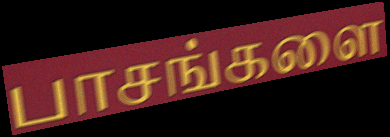
பாசங்களை